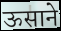
ऊसाने